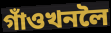
গাঁওখনলৈ